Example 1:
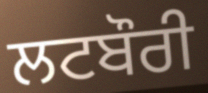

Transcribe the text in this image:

ਲਟਬੌਰੀ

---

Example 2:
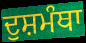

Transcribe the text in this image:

ਦੁਸ਼ਮੰਥਾ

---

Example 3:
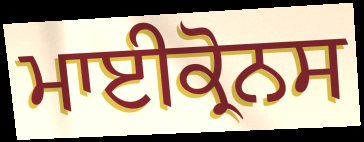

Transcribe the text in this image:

ਮਾਈਕ੍ਰੋਨਸ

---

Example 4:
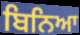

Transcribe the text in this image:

ਬਿਨਿਆ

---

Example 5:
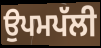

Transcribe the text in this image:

ਉਪਮਪੱਲੀ